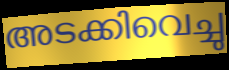
അടക്കിവെച്ചു